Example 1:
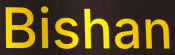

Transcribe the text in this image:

Bishan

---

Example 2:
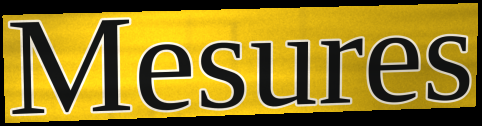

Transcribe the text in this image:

Mesures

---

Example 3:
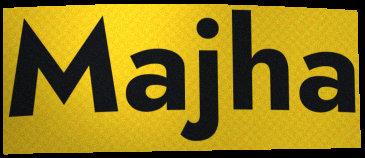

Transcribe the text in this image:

Majha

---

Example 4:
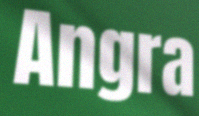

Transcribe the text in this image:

Angra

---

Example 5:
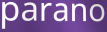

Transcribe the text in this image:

parano